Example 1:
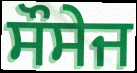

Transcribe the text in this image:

ਸੌਸੇਜ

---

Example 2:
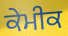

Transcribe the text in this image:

ਕੇਮੀਕ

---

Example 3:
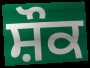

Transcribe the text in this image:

ਸ਼ੌਕ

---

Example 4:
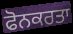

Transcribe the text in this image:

ਫੋਨਕਰਤਾ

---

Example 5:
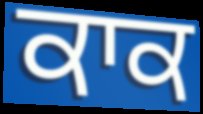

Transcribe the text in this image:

ਕਾਕ